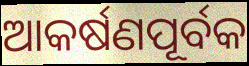
ଆକର୍ଷଣପୂର୍ବକ